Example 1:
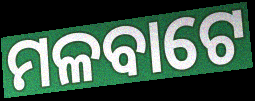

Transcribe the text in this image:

ମଳବାଟେ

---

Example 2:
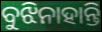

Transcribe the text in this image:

ବୁଝିନାହାନ୍ତି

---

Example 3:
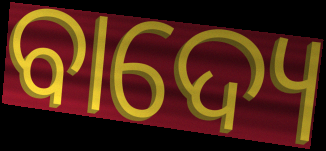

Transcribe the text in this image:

ବାଦ୍ୟେ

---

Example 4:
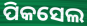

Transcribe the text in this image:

ପିକସେଲ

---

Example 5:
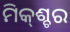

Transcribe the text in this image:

ମିକ୍‌ଶ୍ଚର